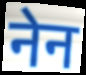
नेन